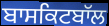
ਬਾਸਕਿਟਬਾੱਲ